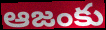
ఆజంకు